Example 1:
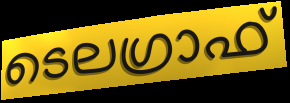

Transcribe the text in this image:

ടെലഗ്രാഫ്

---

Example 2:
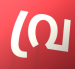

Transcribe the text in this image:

വ്ര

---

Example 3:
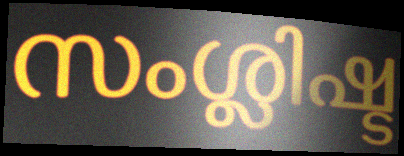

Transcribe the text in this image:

സംശ്ലിഷ്ട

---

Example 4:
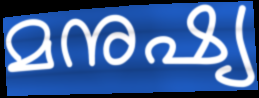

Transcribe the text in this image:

മനുഷ്യ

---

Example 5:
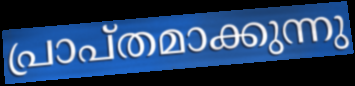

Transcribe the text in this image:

പ്രാപ്തമാക്കുന്നു